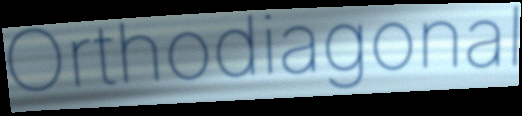
Orthodiagonal